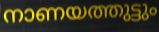
നാണയത്തുട്ടും